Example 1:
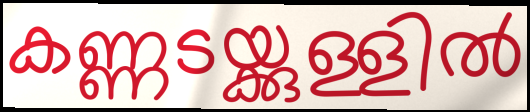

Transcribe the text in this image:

കണ്ണടയ്ക്കുള്ളിൽ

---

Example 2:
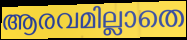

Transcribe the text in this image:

ആരവമില്ലാതെ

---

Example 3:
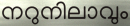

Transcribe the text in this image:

നറുനിലാവും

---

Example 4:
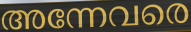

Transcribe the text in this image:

അന്നേവരെ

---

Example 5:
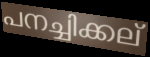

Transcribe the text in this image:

പനച്ചിക്കല്